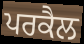
ਪਰਕੈਲ